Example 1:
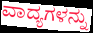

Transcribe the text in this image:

ವಾದ್ಯಗಳನ್ನು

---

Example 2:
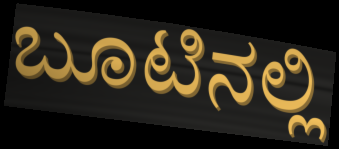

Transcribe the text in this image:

ಬೂಟಿನಲ್ಲಿ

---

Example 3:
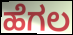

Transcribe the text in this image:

ಹೆಗಲ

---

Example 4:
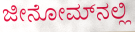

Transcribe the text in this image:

ಜೀನೋಮ್‌ನಲ್ಲಿ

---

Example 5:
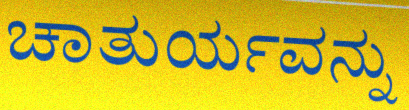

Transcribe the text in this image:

ಚಾತುರ್ಯವನ್ನು